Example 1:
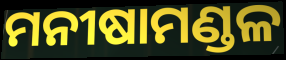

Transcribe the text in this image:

ମନୀଷାମଣ୍ଡଳ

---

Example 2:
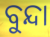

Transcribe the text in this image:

ବୁନ୍ଦା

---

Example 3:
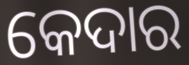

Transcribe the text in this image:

କେଦାର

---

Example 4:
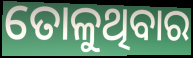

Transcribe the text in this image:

ତୋଳୁଥିବାର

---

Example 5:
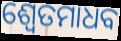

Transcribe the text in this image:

ଶ୍ୱେତମାଧବ